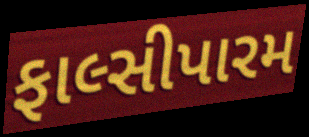
ફાલ્સીપારમ